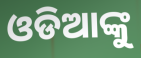
ଓଡିଆଙ୍କୁ